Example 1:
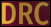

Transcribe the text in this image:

DRC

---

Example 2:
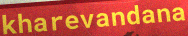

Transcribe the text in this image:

kharevandana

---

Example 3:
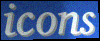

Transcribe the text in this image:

icons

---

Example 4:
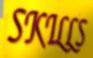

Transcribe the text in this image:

SKILLS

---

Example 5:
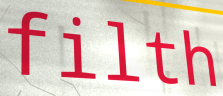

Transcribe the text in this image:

filth